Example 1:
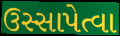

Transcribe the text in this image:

ઉસ્સાપેત્વા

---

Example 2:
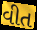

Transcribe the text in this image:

વીત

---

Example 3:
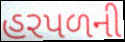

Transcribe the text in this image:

હરપળની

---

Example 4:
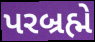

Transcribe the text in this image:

પરબ્રહ્મે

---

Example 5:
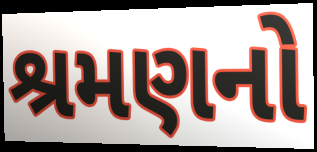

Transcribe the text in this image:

શ્રમણનો